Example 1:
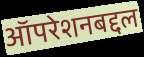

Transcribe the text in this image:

ऑपरेशनबद्दल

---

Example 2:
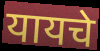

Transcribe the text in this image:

यायचे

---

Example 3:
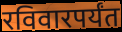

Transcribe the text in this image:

रविवारपर्यंत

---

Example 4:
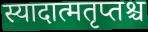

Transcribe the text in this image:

स्यादात्मतृप्तश्च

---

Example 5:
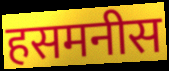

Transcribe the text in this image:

हसमनीस